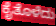
ಕೈತೊಳೆದು